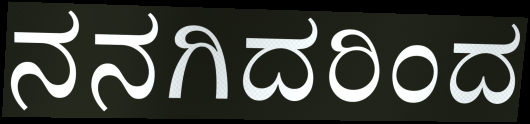
ನನಗಿದರಿಂದ